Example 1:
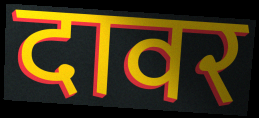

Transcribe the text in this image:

दावर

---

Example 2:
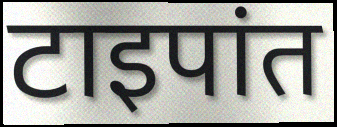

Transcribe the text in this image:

टाइपांत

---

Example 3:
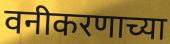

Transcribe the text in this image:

वनीकरणाच्या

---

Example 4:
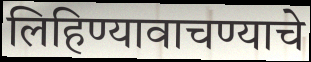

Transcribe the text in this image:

लिहिण्यावाचण्याचे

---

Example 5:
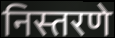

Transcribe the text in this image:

निस्तरणे